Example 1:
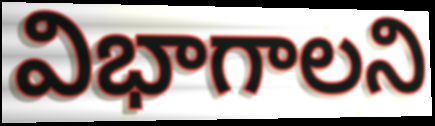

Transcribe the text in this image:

విభాగాలని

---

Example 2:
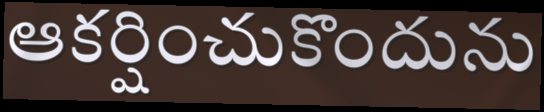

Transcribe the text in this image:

ఆకర్షించుకొందును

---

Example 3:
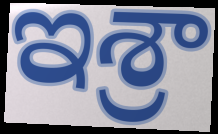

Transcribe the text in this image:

ఇశ్రా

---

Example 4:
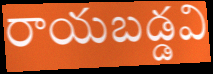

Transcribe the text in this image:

రాయబడ్డవి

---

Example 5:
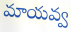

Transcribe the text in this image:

మాయవ్వ